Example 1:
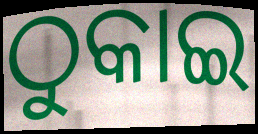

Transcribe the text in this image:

ଠୁକାଇ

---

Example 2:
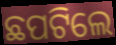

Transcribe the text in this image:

ଛପଟିଲେ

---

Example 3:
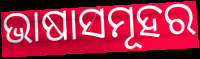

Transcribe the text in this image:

ଭାଷାସମୂହର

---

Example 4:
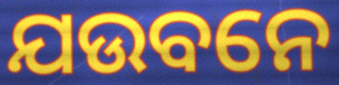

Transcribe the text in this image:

ଯଉବନେ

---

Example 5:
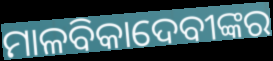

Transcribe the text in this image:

ମାଳବିକାଦେବୀଙ୍କର